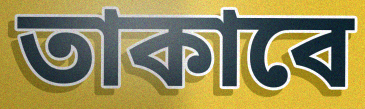
তাকাবে